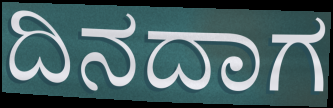
ದಿನದಾಗ